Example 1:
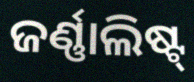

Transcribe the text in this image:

ଜର୍ଣ୍ଣାଲିଷ୍ଟ୍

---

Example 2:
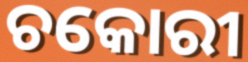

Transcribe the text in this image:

ଚକୋରୀ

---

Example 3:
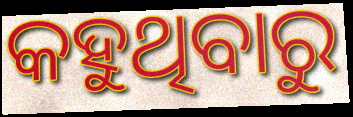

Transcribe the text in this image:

କହୁଥିବାରୁ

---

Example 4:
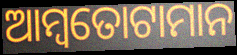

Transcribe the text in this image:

ଆମ୍ବତୋଟାମାନ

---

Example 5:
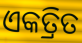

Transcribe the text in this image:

ଏକତ୍ରିତ